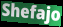
Shefajo